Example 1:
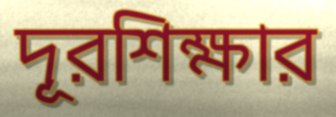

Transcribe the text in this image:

দূরশিক্ষার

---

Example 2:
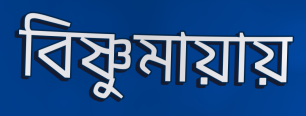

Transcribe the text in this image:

বিষ্ণুমায়ায়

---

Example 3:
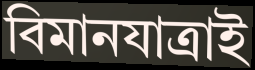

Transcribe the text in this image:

বিমানযাত্রাই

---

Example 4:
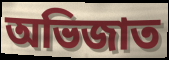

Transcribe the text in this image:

অভিজাত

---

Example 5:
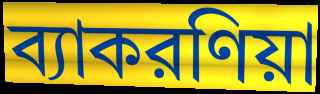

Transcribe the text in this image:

ব্যাকরণিয়া